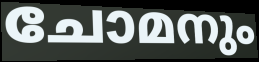
ചോമനും